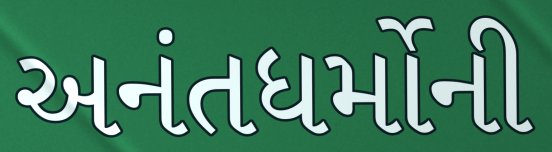
અનંતધર્મોની